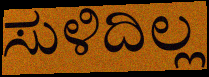
ಸುಳಿದಿಲ್ಲ